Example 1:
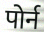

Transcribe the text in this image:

पोर्न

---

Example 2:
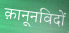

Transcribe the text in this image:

क़ानूनविदों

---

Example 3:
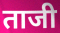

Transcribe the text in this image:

ताजी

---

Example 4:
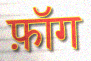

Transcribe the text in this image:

फ़ॉग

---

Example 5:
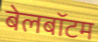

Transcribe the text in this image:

बेलबॉटम